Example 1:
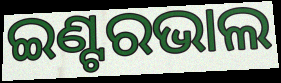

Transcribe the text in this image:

ଇଣ୍ଟରଭାଲ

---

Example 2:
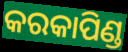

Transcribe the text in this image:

କରକାପିଣ୍ଡ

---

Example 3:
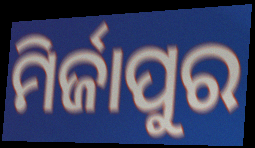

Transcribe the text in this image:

ମିର୍ଜାପୁର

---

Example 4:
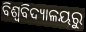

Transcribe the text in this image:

ବିଶ୍ୱବିଦ୍ୟାଳୟରୁ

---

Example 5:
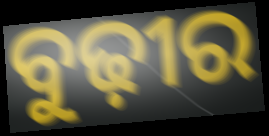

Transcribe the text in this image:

ବୁଢ଼ୀର